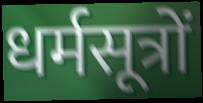
धर्मसूत्रों